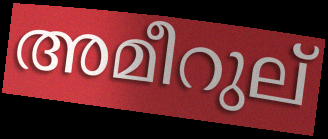
അമീറുല്